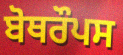
ਬੋਥਰੌਪਸ